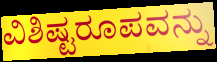
ವಿಶಿಷ್ಟರೂಪವನ್ನು